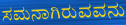
ಸಮನಾಗಿರುವವನು